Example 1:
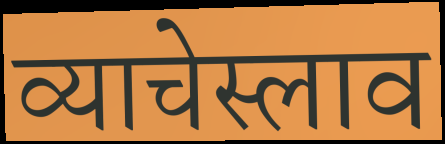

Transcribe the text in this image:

व्याचेस्लाव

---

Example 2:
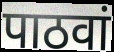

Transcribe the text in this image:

पाठवां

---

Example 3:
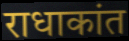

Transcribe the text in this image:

राधाकांत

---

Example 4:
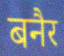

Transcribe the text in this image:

बनैर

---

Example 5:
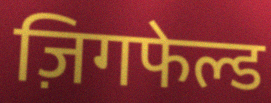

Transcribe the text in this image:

ज़िगफेल्ड